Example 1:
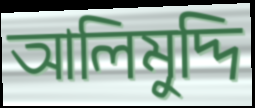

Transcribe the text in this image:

আলিমুদ্দি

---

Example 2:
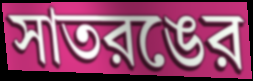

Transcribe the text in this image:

সাতরঙের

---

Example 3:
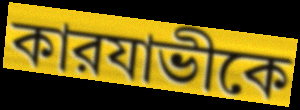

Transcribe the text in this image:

কারযাভীকে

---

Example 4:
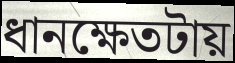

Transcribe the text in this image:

ধানক্ষেতটায়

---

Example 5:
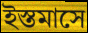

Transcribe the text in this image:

ইস্তমাসে